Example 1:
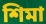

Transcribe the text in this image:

শিমা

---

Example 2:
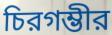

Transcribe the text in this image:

চিরগম্ভীর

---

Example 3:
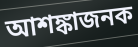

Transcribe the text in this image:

আশঙ্কাজনক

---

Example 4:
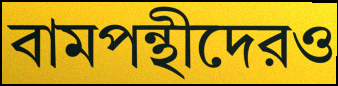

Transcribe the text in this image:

বামপন্থীদেরও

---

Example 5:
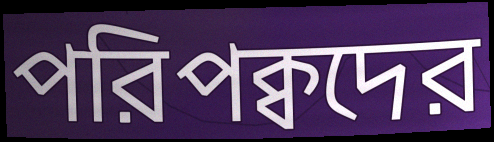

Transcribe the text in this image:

পরিপক্বদের